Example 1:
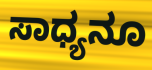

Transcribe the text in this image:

ಸಾಧ್ಯನೂ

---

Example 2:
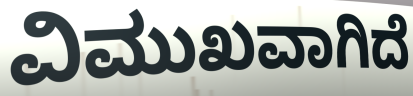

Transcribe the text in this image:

ವಿಮುಖವಾಗಿದೆ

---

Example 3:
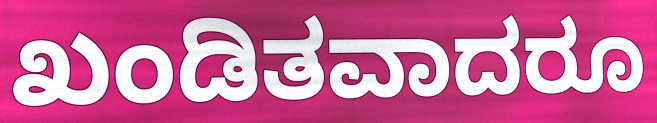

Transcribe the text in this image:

ಖಂಡಿತವಾದರೂ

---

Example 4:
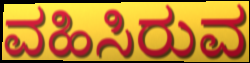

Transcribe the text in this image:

ವಹಿಸಿರುವ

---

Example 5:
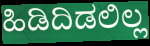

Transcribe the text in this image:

ಹಿಡಿದಿಡಲಿಲ್ಲ